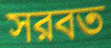
সরবত